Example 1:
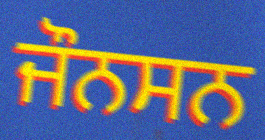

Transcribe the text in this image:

ਜੌਨਸਨ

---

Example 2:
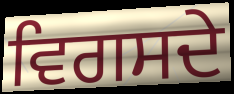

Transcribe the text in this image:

ਵਿਗਸਦੇ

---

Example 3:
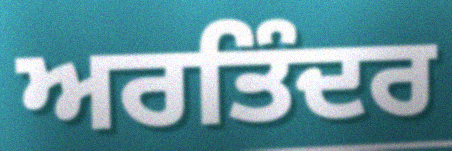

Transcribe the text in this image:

ਅਰਤਿੰਦਰ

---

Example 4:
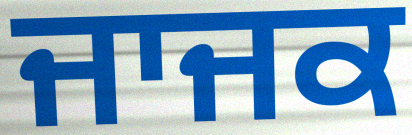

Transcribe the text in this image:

ਜਾਜਕ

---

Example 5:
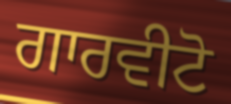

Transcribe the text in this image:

ਗਾਰਵੀਟੋ